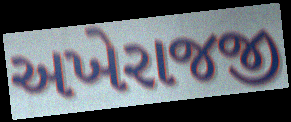
અખેરાજજી